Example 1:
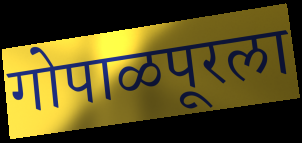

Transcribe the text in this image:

गोपाळपूरला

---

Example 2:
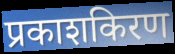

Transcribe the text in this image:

प्रकाशकिरण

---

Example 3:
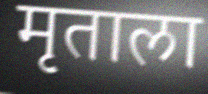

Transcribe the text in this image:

मृताला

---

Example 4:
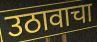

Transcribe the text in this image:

उठावाचा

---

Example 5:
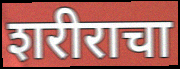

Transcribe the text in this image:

शरीराचा